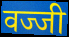
वज्जी